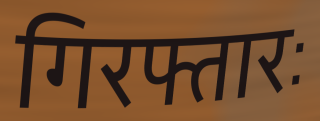
गिरफ्तारः